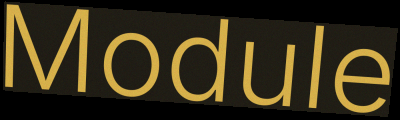
Module